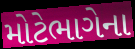
મોટેભાગેના